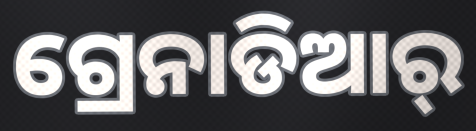
ଗ୍ରେନାଡିଆର୍